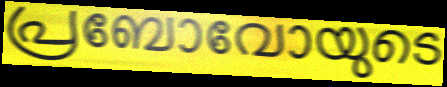
പ്രബോവോയുടെ